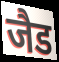
जैड